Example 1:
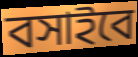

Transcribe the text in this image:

বসাইবে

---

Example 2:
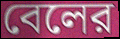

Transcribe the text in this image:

বেলের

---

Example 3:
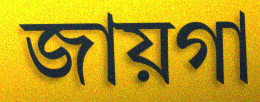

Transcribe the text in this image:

জায়গা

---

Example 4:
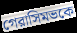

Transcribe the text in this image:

গেরাসিমভকে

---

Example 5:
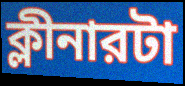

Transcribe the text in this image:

ক্লীনারটা